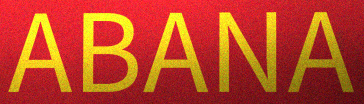
ABANA